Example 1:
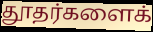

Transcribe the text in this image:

தூதர்களைக்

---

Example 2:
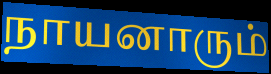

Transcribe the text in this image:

நாயனாரும்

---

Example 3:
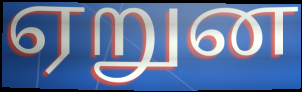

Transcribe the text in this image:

ஏறுன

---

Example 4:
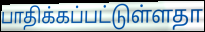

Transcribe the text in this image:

பாதிக்கப்பட்டுள்ளதா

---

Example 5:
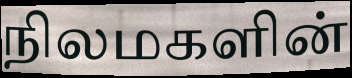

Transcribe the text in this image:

நிலமகளின்